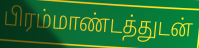
பிரம்மாண்டத்துடன்